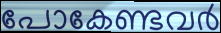
പോകേണ്ടവർ